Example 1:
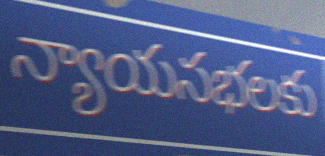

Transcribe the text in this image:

న్యాయసభలకు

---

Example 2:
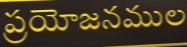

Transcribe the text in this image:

ప్రయోజనముల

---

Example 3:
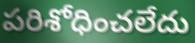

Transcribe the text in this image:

పరిశోధించలేదు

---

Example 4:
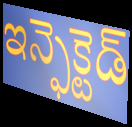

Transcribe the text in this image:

ఇన్ఫెక్టెడ్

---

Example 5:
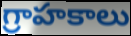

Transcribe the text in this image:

గ్రాహకాలు